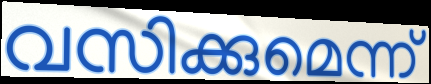
വസിക്കുമെന്ന്